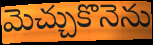
మెచ్చుకొనెను